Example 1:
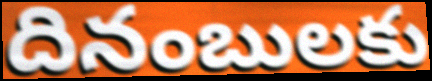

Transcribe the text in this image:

దినంబులకు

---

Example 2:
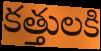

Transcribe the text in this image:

కత్తులకి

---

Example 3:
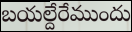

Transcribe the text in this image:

బయల్దేరేముందు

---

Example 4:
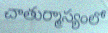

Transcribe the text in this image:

చాతుర్మాస్యంలో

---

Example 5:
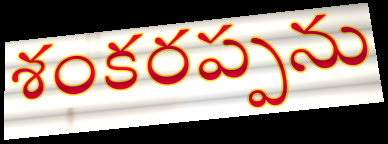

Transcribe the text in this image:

శంకరప్పను